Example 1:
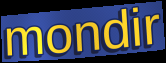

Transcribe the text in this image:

mondir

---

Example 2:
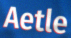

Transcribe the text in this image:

Aetle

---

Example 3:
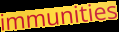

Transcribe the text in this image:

immunities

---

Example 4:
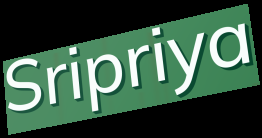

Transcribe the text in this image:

Sripriya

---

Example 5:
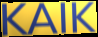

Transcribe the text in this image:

KAIK